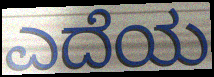
ಎದೆಯ